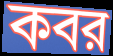
কবর